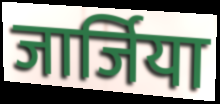
जार्जिया